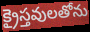
క్రైస్తవులతోను